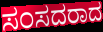
ಸಂಸದರಾದ